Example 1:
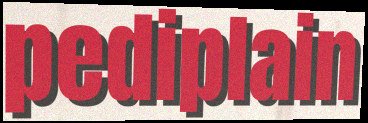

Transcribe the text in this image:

pediplain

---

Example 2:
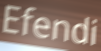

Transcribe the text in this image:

Efendi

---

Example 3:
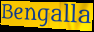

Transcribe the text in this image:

Bengalla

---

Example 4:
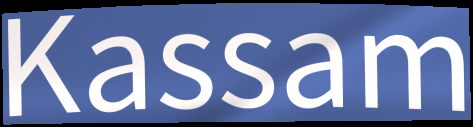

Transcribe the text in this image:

Kassam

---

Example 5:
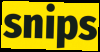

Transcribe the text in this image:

snips